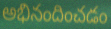
అభినందించడం